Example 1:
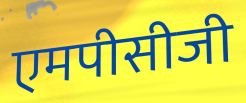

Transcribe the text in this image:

एमपीसीजी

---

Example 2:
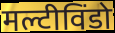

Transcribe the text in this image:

मल्टीविंडो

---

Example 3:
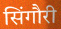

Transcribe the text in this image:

सिंगौरी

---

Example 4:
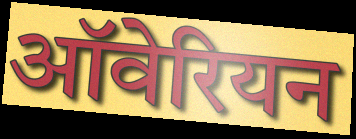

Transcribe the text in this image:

ऑवेरियन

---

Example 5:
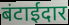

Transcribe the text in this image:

बंटाईदार